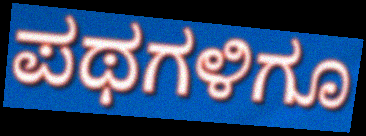
ಪಥಗಳಿಗೂ